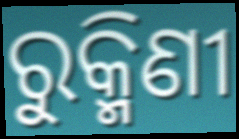
ରୁକ୍ମିଣୀ